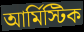
আর্মিস্টিক